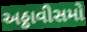
અઠ્ઠાવીસમો